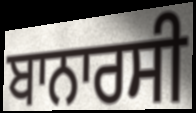
ਬਾਨਾਰਸੀ